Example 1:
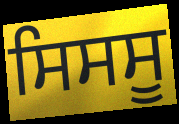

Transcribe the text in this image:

ਸਿਸਸੂ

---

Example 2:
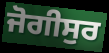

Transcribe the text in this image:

ਜੋਗੀਸੁਰ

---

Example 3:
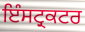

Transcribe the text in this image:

ਇੰਸਟ੍ਰਕਟਰ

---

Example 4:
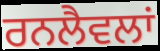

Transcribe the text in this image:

ਰਨਲੈਵਲਾਂ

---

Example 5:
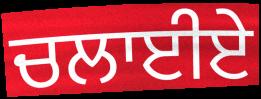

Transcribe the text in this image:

ਚਲਾਈਏ